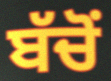
ਬੱਚੋਂ